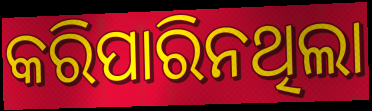
କରିପାରିନଥିଲା